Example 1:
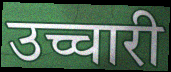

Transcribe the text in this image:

उच्चारी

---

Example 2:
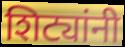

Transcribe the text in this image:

शिट्यांनी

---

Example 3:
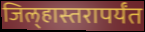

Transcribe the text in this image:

जिल्हास्तरापर्यंत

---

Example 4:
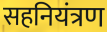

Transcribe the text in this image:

सहनियंत्रण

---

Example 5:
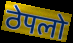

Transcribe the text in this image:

ठेपलो